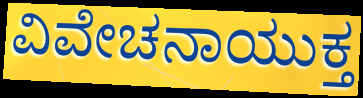
ವಿವೇಚನಾಯುಕ್ತ